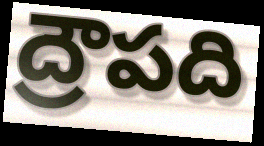
ద్రౌపది